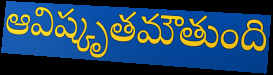
ఆవిష్కృతమౌతుంది